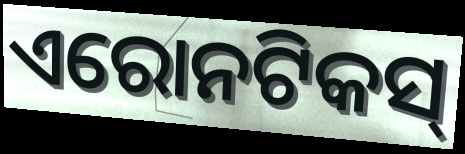
ଏରୋନଟିକସ୍